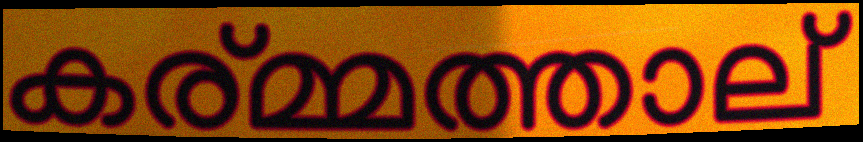
കര്മ്മത്താല്